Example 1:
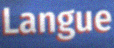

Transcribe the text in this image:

Langue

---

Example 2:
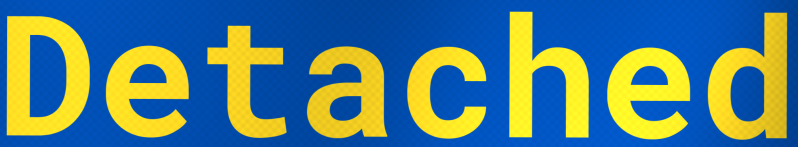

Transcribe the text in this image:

Detached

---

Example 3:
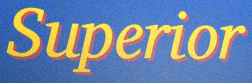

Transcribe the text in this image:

Superior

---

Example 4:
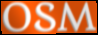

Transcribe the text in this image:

OSM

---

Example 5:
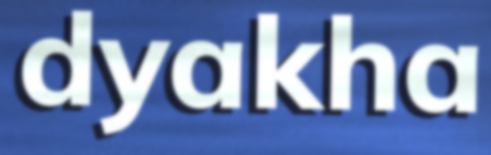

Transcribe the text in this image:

dyakha